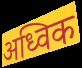
अध्विक